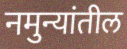
नमुन्यांतील